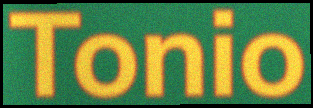
Tonio